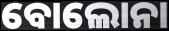
ବୋଲୋନା